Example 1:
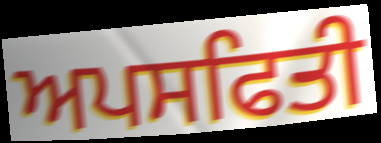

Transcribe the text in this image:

ਅਪਸਫਿਤੀ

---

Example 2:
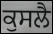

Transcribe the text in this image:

ਕੁਸਲੈ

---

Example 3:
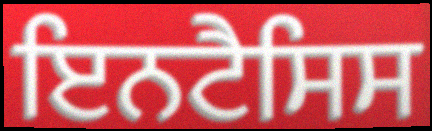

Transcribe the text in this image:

ਇਨਟੈਸਿਸ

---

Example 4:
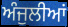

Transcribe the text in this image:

ਅੰਜੁਲੀਆਂ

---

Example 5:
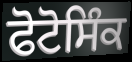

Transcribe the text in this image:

ਫੋਟੋਸਿੰਕ